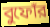
বুফোঁর